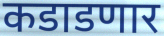
कडाडणार